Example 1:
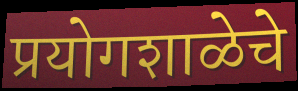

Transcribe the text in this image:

प्रयोगशाळेचे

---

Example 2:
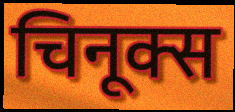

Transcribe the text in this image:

चिनूक्स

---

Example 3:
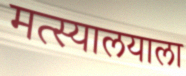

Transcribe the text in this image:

मत्स्यालयाला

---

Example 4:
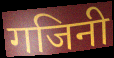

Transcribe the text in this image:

गजिनी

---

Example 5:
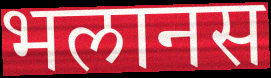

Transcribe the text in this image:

भलानस